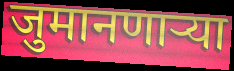
जुमानणार्‍या